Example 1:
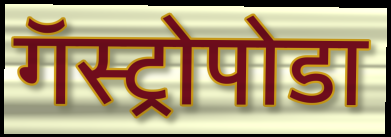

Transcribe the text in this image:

गॅस्ट्रोपोडा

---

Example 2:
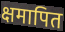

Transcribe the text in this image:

क्षमापित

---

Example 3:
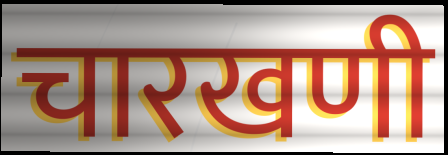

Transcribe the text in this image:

चारखणी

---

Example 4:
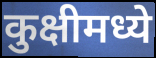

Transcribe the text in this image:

कुक्षीमध्ये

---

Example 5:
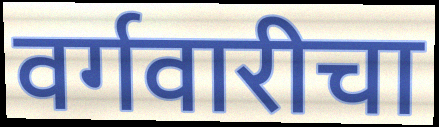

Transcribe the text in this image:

वर्गवारीचा